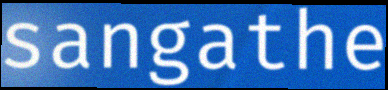
sangathe